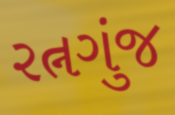
રત્નગુંજ